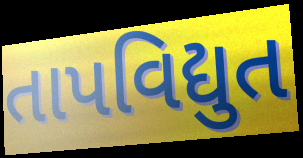
તાપવિદ્યુત